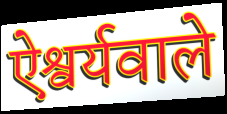
ऐश्वर्यवाले